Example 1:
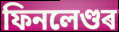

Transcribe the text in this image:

ফিনলেণ্ডৰ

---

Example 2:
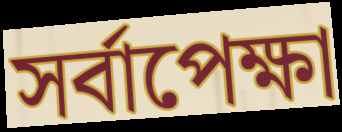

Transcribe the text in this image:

সৰ্বাপেক্ষা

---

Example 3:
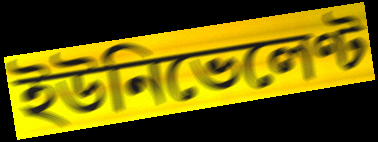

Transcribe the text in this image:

ইউনিভেলেণ্ট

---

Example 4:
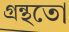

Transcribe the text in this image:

গ্ৰন্থতো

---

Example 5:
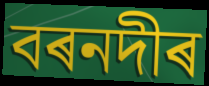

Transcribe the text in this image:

বৰনদীৰ